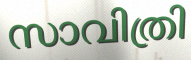
സാവിത്രി